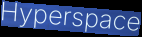
Hyperspace